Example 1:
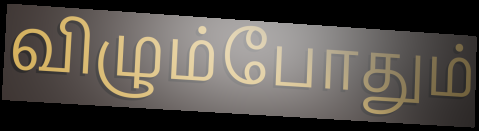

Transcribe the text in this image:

விழும்போதும்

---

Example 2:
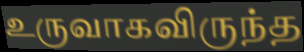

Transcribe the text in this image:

உருவாகவிருந்த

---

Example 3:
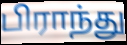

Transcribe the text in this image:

பிராந்து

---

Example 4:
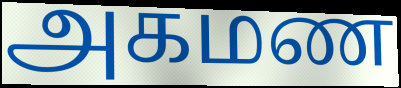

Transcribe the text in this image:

அகமண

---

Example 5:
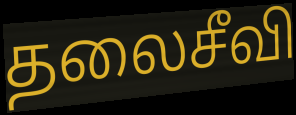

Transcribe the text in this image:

தலைசீவி